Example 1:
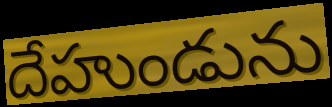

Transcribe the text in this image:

దేహుండును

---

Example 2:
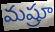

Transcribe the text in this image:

మష్రూ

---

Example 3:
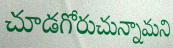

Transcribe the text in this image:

చూడగోరుచున్నామని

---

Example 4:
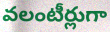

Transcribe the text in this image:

వలంటీర్లుగా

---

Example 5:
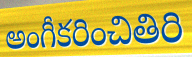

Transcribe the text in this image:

అంగీకరించితిరి